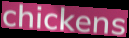
chickens